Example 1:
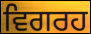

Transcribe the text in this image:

ਵਿਗਰਹ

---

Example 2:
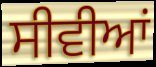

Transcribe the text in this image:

ਸੀਵੀਆਂ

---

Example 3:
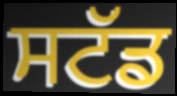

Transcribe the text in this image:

ਸਟੱਡ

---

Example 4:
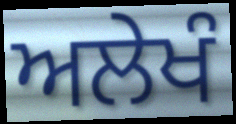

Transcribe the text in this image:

ਅਲੇਖੰ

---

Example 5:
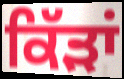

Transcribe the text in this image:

ਕਿੱੜਾਂ